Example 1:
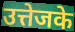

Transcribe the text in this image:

उत्तेजके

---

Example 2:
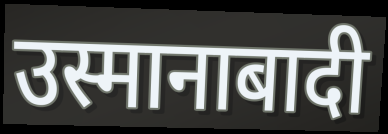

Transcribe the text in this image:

उस्मानाबादी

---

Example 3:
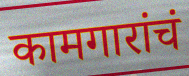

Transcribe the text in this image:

कामगारांचं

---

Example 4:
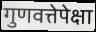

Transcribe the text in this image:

गुणवत्तेपेक्षा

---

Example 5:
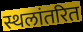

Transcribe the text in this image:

स्थलांतरित